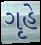
ગૃહે